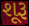
શૂરૂ